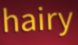
hairy